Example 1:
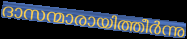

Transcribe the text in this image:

ദാസന്മാരായിത്തീർന്നു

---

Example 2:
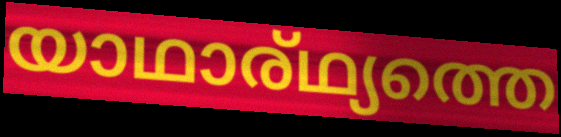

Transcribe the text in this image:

യാഥാര്ഥ്യത്തെ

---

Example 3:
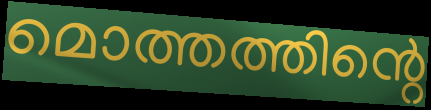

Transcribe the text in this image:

മൊത്തത്തിന്റെ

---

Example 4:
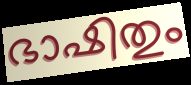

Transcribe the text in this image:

ഭാഷിതും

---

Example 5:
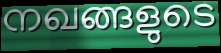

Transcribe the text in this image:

നഖങ്ങളുടെ